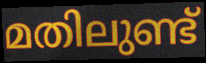
മതിലുണ്ട്